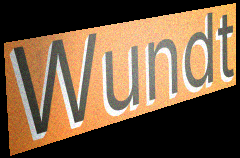
Wundt